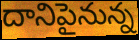
దానిపైనున్న